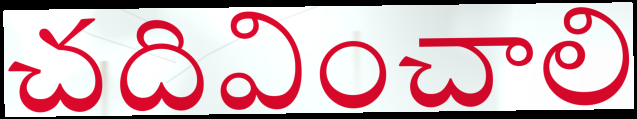
చదివించాలి